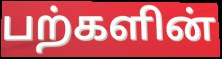
பற்களின்